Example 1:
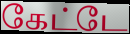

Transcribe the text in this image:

கேட்டே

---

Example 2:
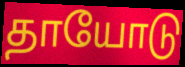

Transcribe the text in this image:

தாயோடு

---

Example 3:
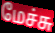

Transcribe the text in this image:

மேச்சு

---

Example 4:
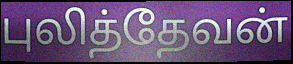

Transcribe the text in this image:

புலித்தேவன்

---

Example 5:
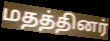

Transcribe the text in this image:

மதத்தினர்